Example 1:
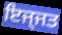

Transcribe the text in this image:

ਇਜ੍ਜਤ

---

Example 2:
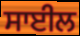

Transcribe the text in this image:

ਸਾਈਲ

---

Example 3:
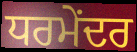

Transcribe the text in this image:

ਧਰਮੇਂਦਰ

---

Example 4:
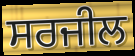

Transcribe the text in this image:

ਸਰਜੀਲ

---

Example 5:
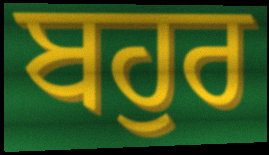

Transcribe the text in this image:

ਬਹੁਰ